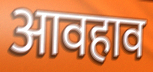
आवहाव